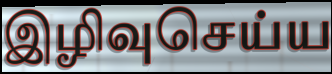
இழிவுசெய்ய